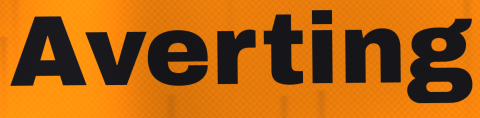
Averting